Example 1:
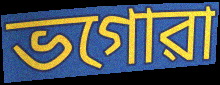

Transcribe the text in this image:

ভগোৱা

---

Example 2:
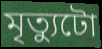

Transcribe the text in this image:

মৃত্যুটো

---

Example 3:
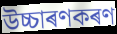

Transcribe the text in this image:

উচ্চাৰণকৰণ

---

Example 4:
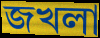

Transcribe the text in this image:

জখলা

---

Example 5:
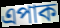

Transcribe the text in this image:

এপাক